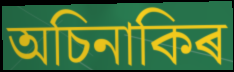
অচিনাকিৰ